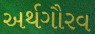
અર્થગૌરવ